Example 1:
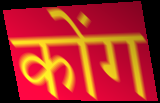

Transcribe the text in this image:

कोंग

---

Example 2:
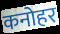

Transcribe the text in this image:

कनोहर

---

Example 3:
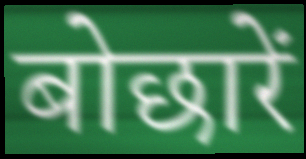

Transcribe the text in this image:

बोछारें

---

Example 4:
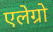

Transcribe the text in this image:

एलेग्रो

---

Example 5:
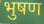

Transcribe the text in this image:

भुषण